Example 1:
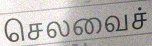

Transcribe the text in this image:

செலவைச்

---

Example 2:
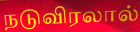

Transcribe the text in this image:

நடுவிரலால்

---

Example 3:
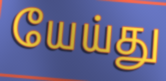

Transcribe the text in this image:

யேய்து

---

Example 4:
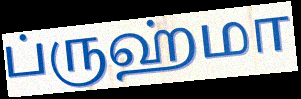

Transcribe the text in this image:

ப்ருஹ்மா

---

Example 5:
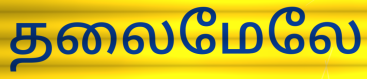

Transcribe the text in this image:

தலைமேலே